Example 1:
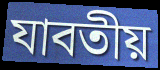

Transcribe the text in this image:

যাবতীয়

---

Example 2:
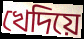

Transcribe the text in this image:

খেদিয়ে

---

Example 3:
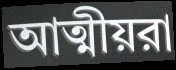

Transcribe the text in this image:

আত্মীয়রা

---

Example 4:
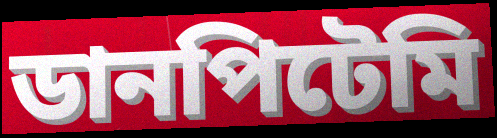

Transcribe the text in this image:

ডানপিটেমি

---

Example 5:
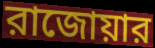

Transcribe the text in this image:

রাজোয়ার